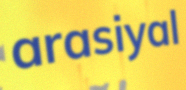
arasiyal